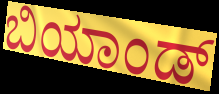
ಬಿಯಾಂಡ್